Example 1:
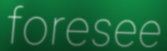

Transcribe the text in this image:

foresee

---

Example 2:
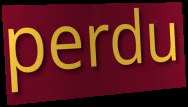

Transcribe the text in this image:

perdu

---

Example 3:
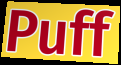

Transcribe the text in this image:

Puff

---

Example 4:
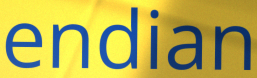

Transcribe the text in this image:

endian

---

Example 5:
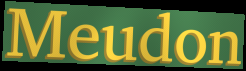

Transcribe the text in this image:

Meudon